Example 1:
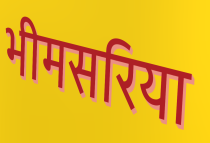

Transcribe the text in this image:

भीमसरिया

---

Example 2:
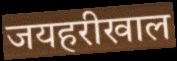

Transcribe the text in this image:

जयहरीखाल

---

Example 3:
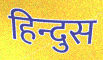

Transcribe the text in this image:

हिन्दुस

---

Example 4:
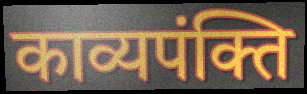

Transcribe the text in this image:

काव्यपंक्ति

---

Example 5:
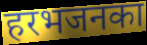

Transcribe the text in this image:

हरभजनका